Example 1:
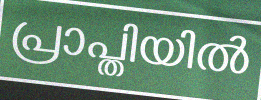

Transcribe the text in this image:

പ്രാപ്തിയിൽ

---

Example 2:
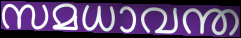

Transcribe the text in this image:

സമധാവന്ത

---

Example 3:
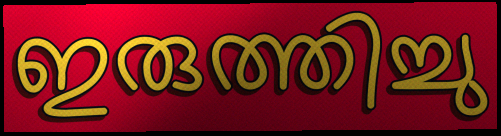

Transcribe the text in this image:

ഇരുത്തിച്ചു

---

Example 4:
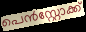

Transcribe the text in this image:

പെൻസ്റ്റോക്ക്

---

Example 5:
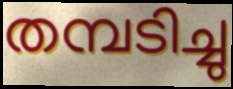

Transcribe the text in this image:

തമ്പടിച്ചു